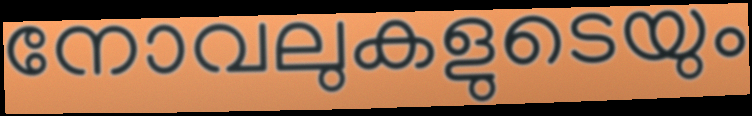
നോവലുകളുടെയും